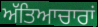
ਅੱਤਿਆਚਾਰਾਂ